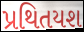
પ્રથિતયશ